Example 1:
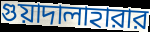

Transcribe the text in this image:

গুয়াদালাহারার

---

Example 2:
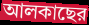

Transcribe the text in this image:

আলকাছের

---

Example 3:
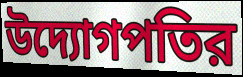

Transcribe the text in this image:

উদ্যোগপতির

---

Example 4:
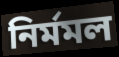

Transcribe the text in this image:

নির্মমল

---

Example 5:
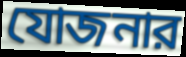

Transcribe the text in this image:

যোজনার